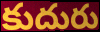
కుదురు